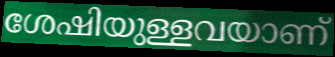
ശേഷിയുള്ളവയാണ്